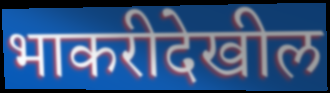
भाकरीदेखील